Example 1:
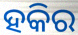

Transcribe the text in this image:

ହକିର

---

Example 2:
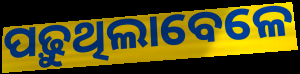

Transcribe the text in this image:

ପଢ଼ୁଥିଲାବେଳେ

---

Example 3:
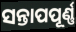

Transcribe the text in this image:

ସନ୍ତାପପୂର୍ଣ୍ଣ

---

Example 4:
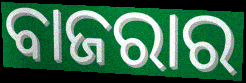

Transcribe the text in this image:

ବାଜରାର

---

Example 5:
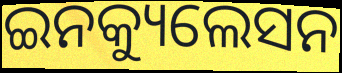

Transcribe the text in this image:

ଇନକ୍ୟୁଲେସନ